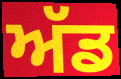
ਅੱਡ